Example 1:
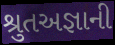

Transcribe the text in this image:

શ્રુતઅજ્ઞાની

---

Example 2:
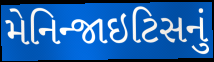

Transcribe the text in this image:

મેનિન્જાઇટિસનું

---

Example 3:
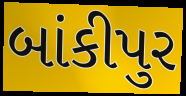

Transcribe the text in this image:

બાંકીપુર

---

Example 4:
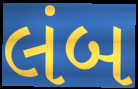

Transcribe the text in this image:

લંબ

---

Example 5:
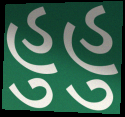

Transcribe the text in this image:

હુહુ